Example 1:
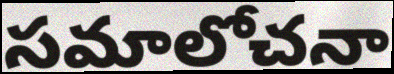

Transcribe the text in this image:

సమాలోచనా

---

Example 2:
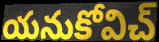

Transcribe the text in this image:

యనుకోవిచ్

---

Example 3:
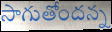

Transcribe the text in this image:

సాగుతోందన్న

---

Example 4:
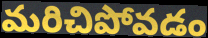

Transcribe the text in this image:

మరిచిపోవడం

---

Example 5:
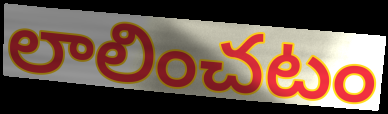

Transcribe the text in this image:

లాలించటం